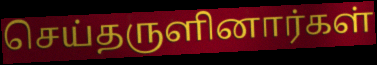
செய்தருளினார்கள்